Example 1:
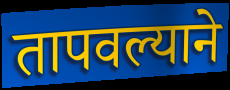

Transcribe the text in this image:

तापवल्याने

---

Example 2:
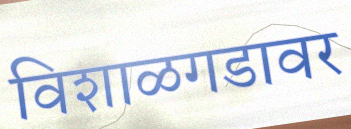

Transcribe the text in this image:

विशाळगडावर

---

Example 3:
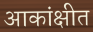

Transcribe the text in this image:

आकांक्षीत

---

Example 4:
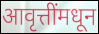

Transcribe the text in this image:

आवृत्तींमधून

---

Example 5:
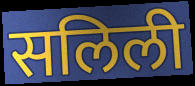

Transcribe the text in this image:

सलिली